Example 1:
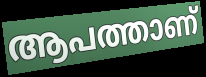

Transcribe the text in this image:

ആപത്താണ്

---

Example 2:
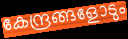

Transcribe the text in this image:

കേന്ദ്രങ്ങളോടും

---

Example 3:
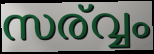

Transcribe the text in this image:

സര്വ്വം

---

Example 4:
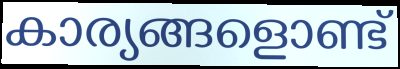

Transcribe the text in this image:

കാര്യങ്ങളൊണ്ട്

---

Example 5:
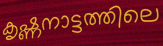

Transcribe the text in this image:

കൃഷ്ണനാട്ടത്തിലെ